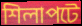
শিলাপটে